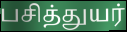
பசித்துயர்